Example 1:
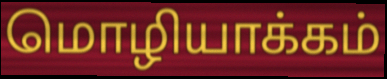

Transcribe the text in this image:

மொழியாக்கம்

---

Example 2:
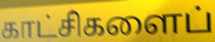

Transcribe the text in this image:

காட்சிகளைப்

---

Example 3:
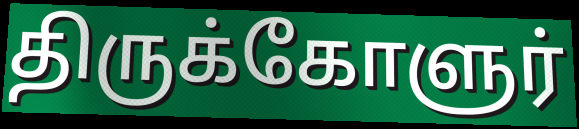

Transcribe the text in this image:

திருக்கோளுர்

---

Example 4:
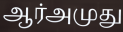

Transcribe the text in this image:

ஆர்அமுது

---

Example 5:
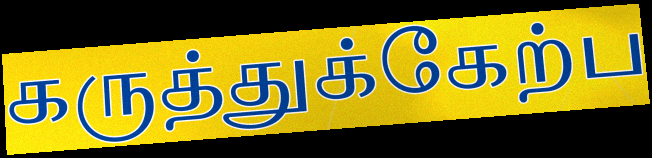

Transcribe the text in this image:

கருத்துக்கேற்ப